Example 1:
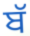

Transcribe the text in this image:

ਬੱ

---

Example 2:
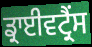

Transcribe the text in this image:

ਡ੍ਰਾਈਵਟ੍ਰੈਂਸ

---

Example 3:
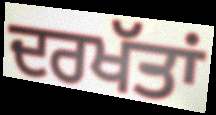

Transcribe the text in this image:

ਦਰਖੱਤਾਂ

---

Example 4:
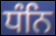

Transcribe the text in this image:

ਧੰਨਿ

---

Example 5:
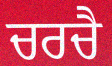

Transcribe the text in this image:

ਚਰਚੈ